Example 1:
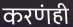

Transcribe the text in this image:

करणंही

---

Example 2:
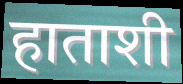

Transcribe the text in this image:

हाताशी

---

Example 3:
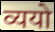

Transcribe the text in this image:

व्ययो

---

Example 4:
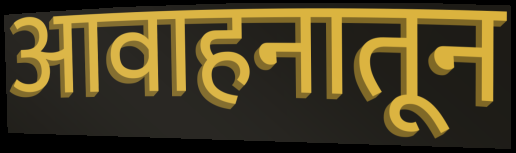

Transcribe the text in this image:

आवाहनातून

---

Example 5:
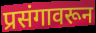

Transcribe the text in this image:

प्रसंगावरून